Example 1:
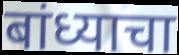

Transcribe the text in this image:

बांध्याचा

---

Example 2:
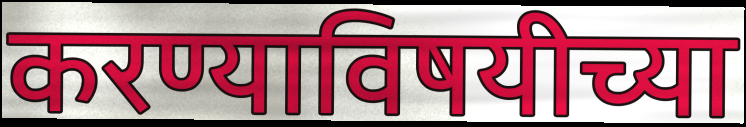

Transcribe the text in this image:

करण्याविषयीच्या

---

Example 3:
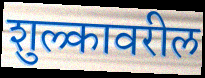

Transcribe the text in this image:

शुल्कावरील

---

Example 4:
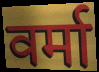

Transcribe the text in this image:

वर्मा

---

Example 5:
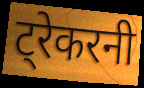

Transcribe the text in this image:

ट्रेकरनी